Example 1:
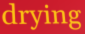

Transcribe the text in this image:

drying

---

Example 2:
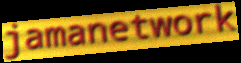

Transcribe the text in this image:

jamanetwork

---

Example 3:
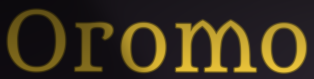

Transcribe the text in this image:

Oromo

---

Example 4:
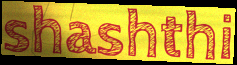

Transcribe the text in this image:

shashthi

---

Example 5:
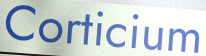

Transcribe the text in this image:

Corticium